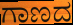
ಗಾಣದ